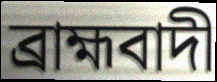
ব্ৰাহ্মবাদী